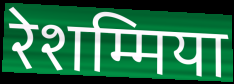
रेशम्मिया